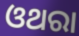
ଓଥରା